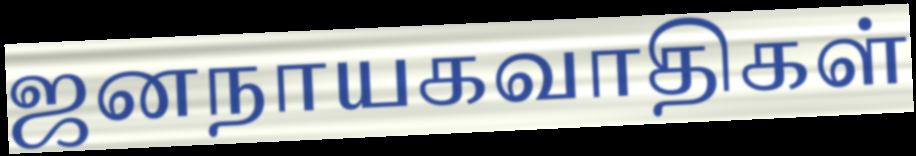
ஜனநாயகவாதிகள்